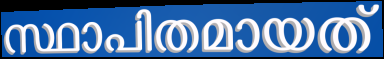
സ്ഥാപിതമായത്